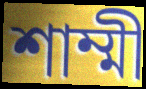
শাম্মী